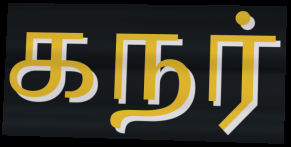
கநர்